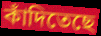
কাঁদিতেছে